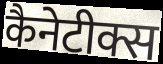
कैनेटीक्स